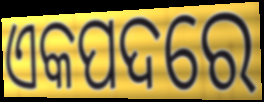
ଏକପଦରେ